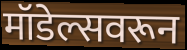
मॉडेल्सवरून